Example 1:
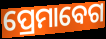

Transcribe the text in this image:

ପ୍ରେମାବେଗ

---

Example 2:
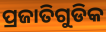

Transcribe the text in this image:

ପ୍ରଜାତିଗୁଡିକ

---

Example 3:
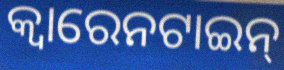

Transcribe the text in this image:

କ୍ୱାରେନଟାଇନ୍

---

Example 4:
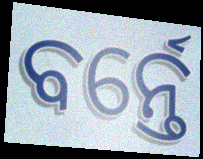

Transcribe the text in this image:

ବର୍ନ୍ତେ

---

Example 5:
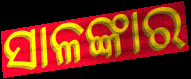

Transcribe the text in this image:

ସାଳଙ୍କାର